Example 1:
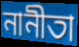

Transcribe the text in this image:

নানীতা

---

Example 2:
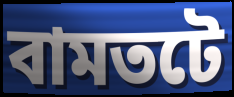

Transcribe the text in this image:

বামতটে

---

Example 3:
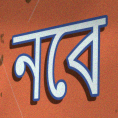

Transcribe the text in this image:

নবে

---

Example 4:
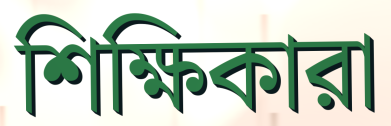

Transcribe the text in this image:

শিক্ষিকারা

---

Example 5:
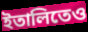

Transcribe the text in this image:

ইতালিতেও